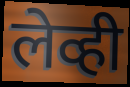
लेव्ही